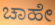
ಚಾಹೇ